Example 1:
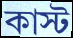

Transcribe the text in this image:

কাস্ট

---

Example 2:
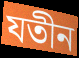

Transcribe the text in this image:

যতীন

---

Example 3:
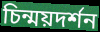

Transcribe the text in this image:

চিন্ময়দর্শন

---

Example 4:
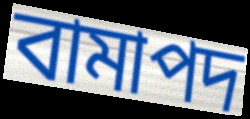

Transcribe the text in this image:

বামাপদ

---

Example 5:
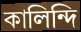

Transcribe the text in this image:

কালিন্দি